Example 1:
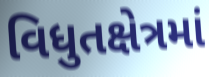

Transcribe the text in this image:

વિધુતક્ષેત્રમાં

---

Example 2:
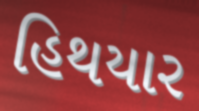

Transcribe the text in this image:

હિથયાર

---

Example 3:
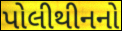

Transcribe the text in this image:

પોલીથીનનો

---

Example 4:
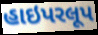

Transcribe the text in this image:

હાઇપરલૂપ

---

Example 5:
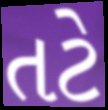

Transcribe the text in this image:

તટે